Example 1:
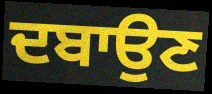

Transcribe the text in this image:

ਦਬਾਉਣ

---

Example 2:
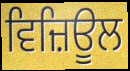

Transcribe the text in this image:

ਵਿਜ਼ਿਊਲ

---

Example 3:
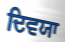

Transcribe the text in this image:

ਦਿਵਯਾ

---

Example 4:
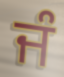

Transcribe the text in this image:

ਜੰ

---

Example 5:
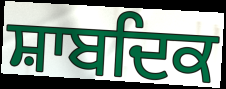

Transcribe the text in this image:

ਸ਼ਾਬਦਿਕ